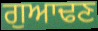
ਗੁਆਢਣ